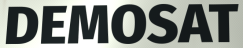
DEMOSAT